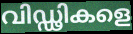
വിഡ്ഢികളെ